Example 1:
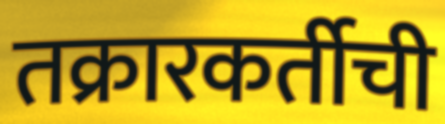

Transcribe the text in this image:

तक्रारकर्तीची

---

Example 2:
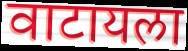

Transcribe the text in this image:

वाटायला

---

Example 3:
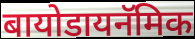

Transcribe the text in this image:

बायोडायनॅमिक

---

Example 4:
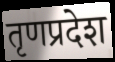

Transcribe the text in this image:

तृणप्रदेश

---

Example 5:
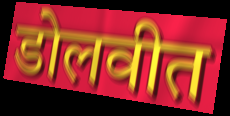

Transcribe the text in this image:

डोलवीत